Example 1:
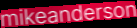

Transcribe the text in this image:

mikeanderson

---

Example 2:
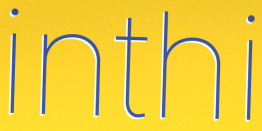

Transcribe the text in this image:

inthi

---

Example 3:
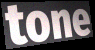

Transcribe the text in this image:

tone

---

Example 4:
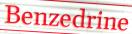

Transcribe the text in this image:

Benzedrine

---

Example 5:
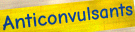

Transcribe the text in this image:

Anticonvulsants